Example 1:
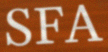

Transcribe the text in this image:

SFA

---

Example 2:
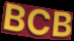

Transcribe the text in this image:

BCB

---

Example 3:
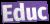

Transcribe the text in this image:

Educ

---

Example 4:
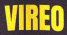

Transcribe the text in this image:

VIREO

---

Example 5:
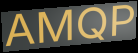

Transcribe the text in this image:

AMQP